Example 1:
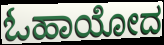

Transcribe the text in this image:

ಓಹಾಯೋದ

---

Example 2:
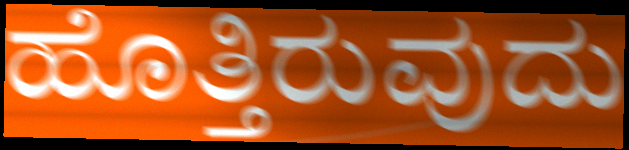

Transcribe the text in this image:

ಹೊತ್ತಿರುವುದು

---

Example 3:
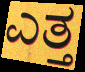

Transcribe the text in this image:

ಎತ್ತ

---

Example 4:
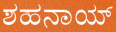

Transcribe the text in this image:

ಶಹನಾಯ್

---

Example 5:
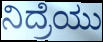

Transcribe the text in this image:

ನಿದ್ರೆಯು